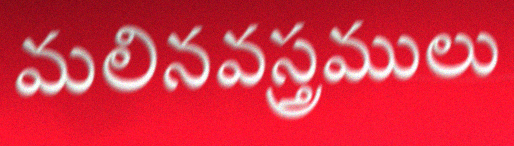
మలినవస్త్రములు